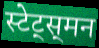
स्टेट्स्‌मन